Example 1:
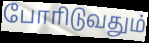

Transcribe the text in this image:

போரிடுவதும்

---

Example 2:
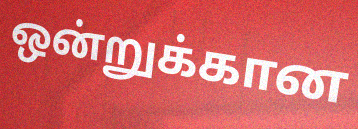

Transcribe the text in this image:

ஒன்றுக்கான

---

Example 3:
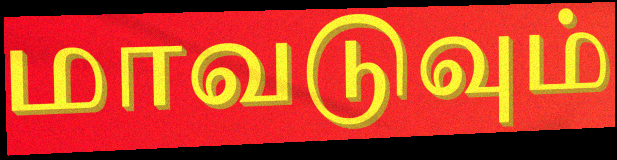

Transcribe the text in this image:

மாவடுவும்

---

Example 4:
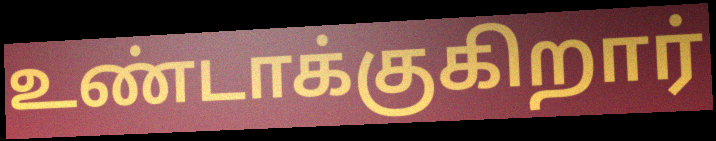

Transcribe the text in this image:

உண்டாக்குகிறார்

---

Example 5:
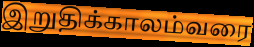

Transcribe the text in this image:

இறுதிக்காலம்வரை